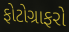
ફોટોગ્રાફરો